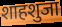
शाहशुजा